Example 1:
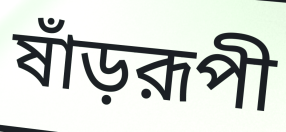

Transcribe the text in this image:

ষাঁড়রূপী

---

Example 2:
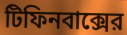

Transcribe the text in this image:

টিফিনবাক্সের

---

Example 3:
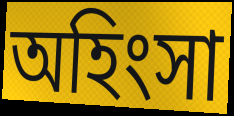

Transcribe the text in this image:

অহিংসা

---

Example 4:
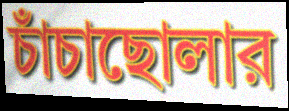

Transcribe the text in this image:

চাঁচাছোলার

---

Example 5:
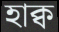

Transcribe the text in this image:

হাক্ব